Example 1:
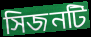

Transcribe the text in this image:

সিজনটি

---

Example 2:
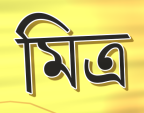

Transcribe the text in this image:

মিত্র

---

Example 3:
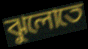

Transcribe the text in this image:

ঝুলোতে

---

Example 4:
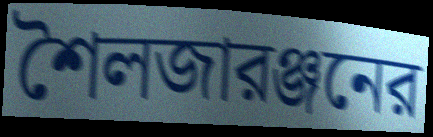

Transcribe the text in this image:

শৈলজারঞ্জনের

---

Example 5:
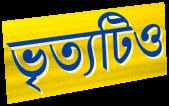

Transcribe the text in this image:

ভৃত্যটিও